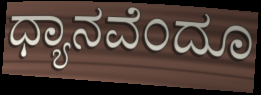
ಧ್ಯಾನವೆಂದೂ